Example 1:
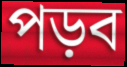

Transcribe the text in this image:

পড়ব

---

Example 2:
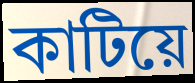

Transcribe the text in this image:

কাটিয়ে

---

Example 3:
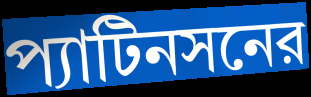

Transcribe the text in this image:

প্যাটিনসনের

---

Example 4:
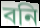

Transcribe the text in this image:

বনি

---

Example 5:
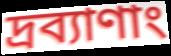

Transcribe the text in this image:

দ্রব্যাণাং